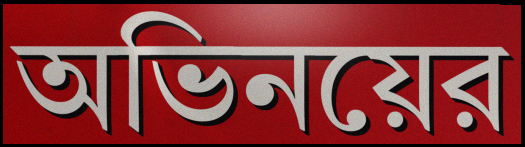
অভিনয়ের